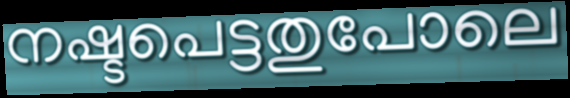
നഷ്ടപെട്ടതുപോലെ